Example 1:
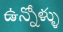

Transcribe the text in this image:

ఉన్నోళ్ళు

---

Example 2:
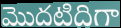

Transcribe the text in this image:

మొదటిదిగా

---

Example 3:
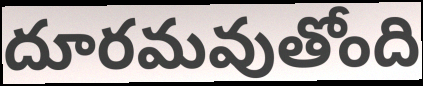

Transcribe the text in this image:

దూరమవుతోంది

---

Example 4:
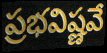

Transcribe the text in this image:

ప్రభవిష్ణవే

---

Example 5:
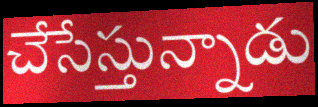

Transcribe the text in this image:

చేసేస్తున్నాడు